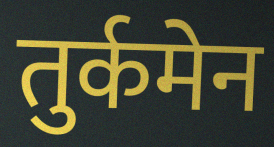
तुर्कमेन